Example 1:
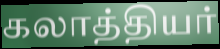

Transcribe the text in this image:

கலாத்தியர்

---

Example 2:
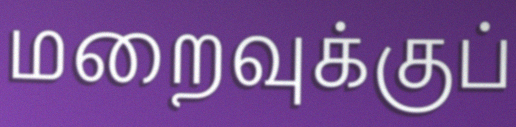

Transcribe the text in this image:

மறைவுக்குப்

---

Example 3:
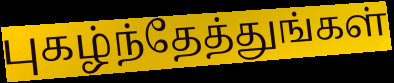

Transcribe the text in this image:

புகழ்ந்தேத்துங்கள்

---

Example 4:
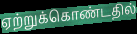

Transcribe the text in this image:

ஏற்றுக்கொண்டதில்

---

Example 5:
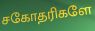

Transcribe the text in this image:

சகோதரிகளே